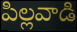
పిల్లవాడి